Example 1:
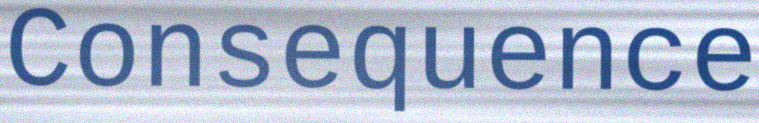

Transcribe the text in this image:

Consequence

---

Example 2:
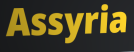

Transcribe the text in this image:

Assyria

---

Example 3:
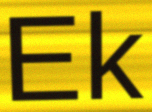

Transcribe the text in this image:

Ek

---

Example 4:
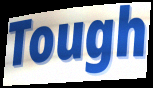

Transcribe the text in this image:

Tough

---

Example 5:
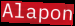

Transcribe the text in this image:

Alapon